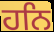
ਹਨਿ